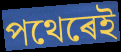
পথেৰেই